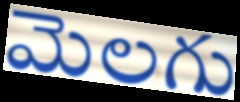
మెలగు